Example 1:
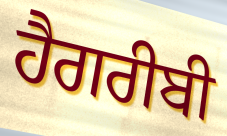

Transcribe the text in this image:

ਹੈਗਰੀਬੀ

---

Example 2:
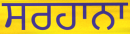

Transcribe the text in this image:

ਸਰਹਾਨਾ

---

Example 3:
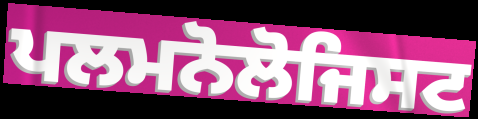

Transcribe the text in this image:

ਪਲਮਨੋਲੋਜਿਸਟ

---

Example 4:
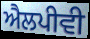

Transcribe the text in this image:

ਐਲਪੀਵੀ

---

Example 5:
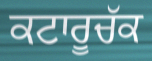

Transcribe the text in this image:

ਕਟਾਰੂਚੱਕ